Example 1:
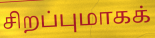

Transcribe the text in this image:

சிறப்புமாகக்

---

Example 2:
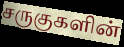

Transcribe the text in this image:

சருகுகளின்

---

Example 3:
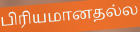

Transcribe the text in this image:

பிரியமானதல்ல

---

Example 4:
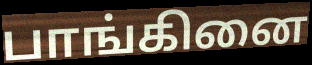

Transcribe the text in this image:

பாங்கினை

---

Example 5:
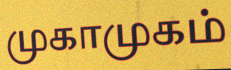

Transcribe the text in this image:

முகாமுகம்